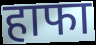
हाफा